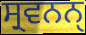
ਸ੍ਰਵਨਨੑ